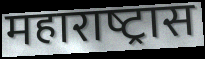
महाराष्ट्रास